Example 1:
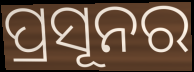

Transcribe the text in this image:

ପ୍ରସୂନର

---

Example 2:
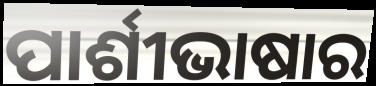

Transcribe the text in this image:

ପାର୍ଶୀଭାଷାର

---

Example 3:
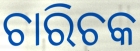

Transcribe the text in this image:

ଚାରିଚକ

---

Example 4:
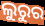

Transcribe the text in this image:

ଲୁରୁର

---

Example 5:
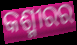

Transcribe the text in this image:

କଶ୍ମୀରର